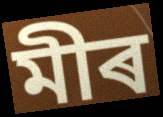
মীৰ